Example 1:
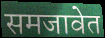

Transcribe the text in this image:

समजावेत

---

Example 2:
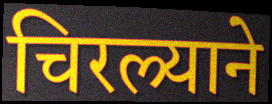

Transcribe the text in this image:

चिरल्याने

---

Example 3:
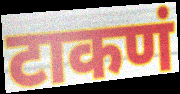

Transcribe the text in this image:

टाकणं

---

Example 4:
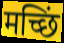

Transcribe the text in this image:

मच्छिं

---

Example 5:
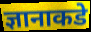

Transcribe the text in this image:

ज्ञानाकडे